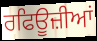
ਰਫਿਊਜ਼ੀਆਂ